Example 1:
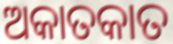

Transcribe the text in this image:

ଅକାତକାତ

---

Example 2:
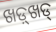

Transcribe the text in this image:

ଖଡ଼୍‌ଖଡ୍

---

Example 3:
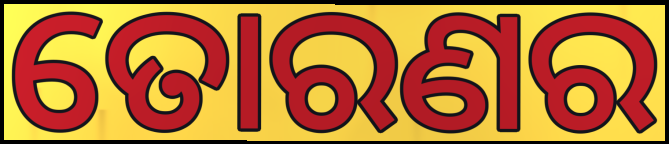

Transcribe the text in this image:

ତୋରଣର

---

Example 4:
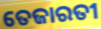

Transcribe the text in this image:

ତେଜାରତୀ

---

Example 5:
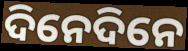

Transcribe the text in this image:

ଦିନେଦିନେ